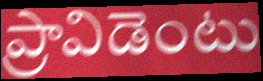
ప్రావిడెంటు